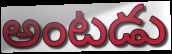
అంటడు